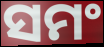
ସମଂ